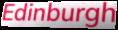
Edinburgh